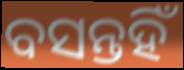
ବସନ୍ତହିଁ